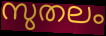
സുതലം